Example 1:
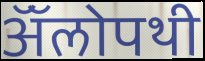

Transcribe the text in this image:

ॲॅलोपथी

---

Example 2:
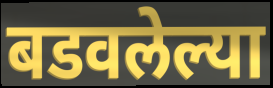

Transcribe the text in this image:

बडवलेल्या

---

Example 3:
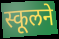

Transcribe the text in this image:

स्कूलने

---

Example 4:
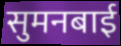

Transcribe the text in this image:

सुमनबाई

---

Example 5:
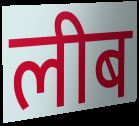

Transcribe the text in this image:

लीब